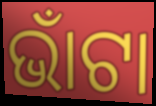
ଭାଁଟା